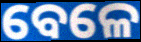
ବେଳେ